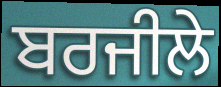
ਬਰਜੀਲੇ